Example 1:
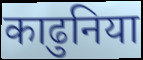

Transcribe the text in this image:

काढुनिया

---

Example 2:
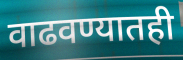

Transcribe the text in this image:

वाढवण्यातही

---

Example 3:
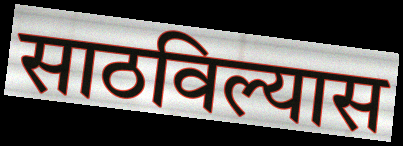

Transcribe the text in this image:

साठविल्यास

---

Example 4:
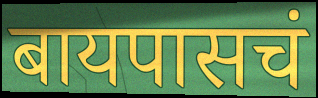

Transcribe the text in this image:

बायपासचं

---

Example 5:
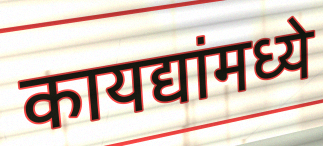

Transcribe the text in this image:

कायद्यांमध्ये